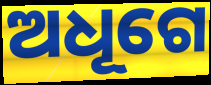
ଅଧୂଗେ